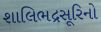
શાલિભદ્રસૂરિનો